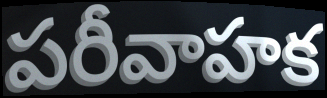
పరీవాహక